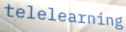
telelearning